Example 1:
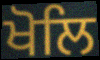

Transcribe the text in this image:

ਖੋਲਿ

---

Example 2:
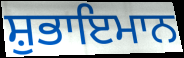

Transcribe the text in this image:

ਸ਼ੁਭਾਇਮਾਨ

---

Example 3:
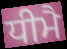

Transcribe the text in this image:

ਧੀਮੈ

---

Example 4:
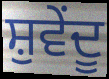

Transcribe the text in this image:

ਸ਼ੁਵੇਂਦੂ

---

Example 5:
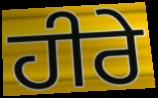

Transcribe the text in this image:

ਹੀਰੇ